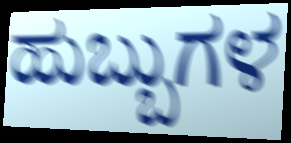
ಹುಬ್ಬುಗಳ